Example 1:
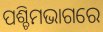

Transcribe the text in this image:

ପଶ୍ଚିମଭାଗରେ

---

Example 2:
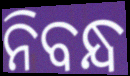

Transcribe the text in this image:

ନିବନ୍ଧ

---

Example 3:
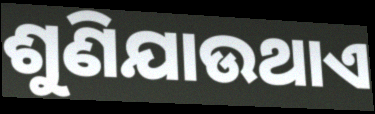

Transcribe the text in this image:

ଶୁଣିଯାଉଥାଏ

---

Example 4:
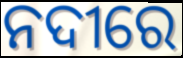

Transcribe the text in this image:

ନଦୀରେ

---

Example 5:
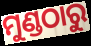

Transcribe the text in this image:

ମୁଣ୍ଡଠାରୁ